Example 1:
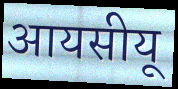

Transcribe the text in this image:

आयसीयू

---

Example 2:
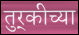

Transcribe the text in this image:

तुर्कीच्या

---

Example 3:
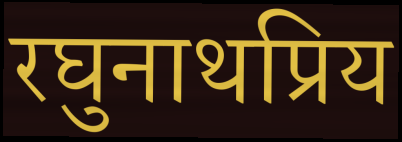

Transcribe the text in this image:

रघुनाथप्रिय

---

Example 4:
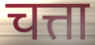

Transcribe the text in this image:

चत्ता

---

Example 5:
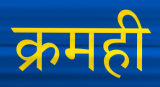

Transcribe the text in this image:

क्रमही